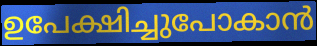
ഉപേക്ഷിച്ചുപോകാൻ